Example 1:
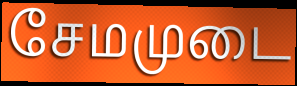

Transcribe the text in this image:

சேமமுடை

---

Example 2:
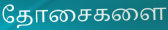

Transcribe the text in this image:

தோசைகளை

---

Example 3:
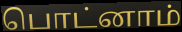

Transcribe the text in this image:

பொட்னாம்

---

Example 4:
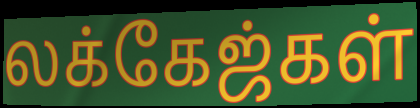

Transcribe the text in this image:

லக்கேஜ்கள்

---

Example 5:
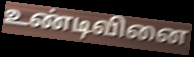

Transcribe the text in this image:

உண்டிவினை